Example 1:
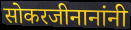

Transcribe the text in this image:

सोकरजीनानांनी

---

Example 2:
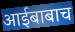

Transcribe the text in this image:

आईबाबाच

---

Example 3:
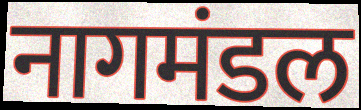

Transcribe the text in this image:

नागमंडल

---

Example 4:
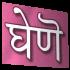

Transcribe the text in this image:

घेणॆ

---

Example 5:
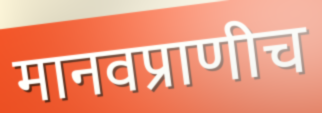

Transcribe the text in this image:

मानवप्राणीच